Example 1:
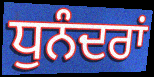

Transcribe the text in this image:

ਧੁਨੰਦਰਾਂ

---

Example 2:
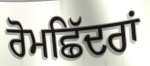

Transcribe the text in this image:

ਰੋਮਛਿੱਦਰਾਂ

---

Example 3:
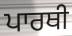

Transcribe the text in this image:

ਪਾਰਥੀ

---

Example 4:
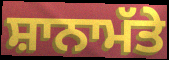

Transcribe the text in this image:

ਸ਼ਾਨਾਮੱਤੇ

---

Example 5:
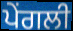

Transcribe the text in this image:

ਪੇਂਗਲੀ